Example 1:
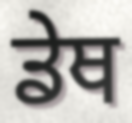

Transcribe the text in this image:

ਡੇਥ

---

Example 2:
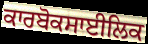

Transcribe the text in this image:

ਕਾਰਬੋਕਸਾਈਲਿਕ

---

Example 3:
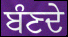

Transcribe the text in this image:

ਬੰਣਦੇ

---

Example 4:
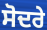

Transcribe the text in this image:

ਸੋਦਰੇ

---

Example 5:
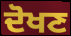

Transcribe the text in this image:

ਦੋਖਣ